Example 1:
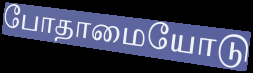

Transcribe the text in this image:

போதாமையோடு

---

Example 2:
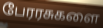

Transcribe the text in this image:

பேரரசுகளை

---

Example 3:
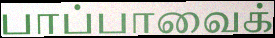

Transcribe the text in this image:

பாப்பாவைக்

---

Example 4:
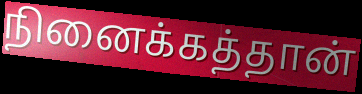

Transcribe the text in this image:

நினைக்கத்தான்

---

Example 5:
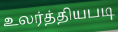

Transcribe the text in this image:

உலர்த்தியபடி